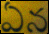
ఏన